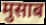
मुसाब